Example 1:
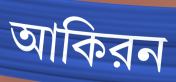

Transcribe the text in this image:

আকিরন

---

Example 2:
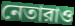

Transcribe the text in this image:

নেতারাও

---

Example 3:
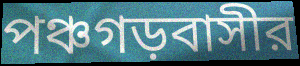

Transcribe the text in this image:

পঞ্চগড়বাসীর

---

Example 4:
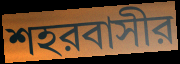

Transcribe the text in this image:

শহরবাসীর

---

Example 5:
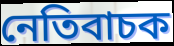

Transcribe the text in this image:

নেতিবাচক